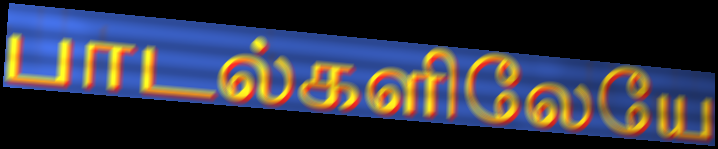
பாடல்களிலேயே